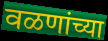
वळणांच्या